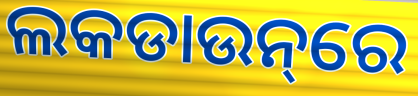
ଲକଡାଉନ୍‌ରେ